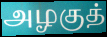
அழகுத்